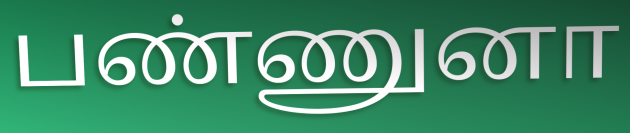
பண்ணுனா